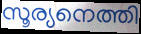
സൂര്യനെത്തി